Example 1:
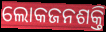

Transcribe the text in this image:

ଲୋକଜନଶକ୍ତି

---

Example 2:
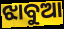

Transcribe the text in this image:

ଝାବୁଆ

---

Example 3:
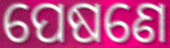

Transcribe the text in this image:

ପେଷଣେ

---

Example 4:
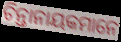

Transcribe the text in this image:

ଚିନ୍ତାନାୟକମାନେ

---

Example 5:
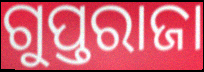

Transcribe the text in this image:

ଗୁପ୍ତରାଜା